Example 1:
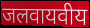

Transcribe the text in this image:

जलवायवीय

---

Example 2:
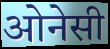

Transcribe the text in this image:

ओनेसी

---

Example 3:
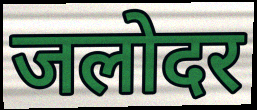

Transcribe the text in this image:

जलोदर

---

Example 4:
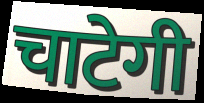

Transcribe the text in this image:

चाटेगी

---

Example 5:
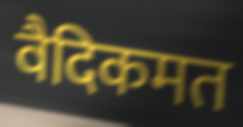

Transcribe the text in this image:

वैदिकमत